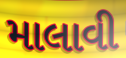
માલાવી